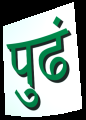
पुढं